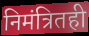
निमंत्रितही